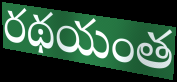
రథయంత